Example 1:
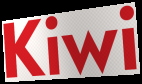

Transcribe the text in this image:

Kiwi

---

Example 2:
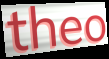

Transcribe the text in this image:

theo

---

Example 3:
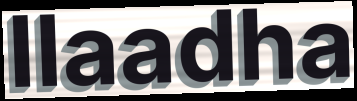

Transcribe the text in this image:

Ilaadha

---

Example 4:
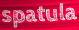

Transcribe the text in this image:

spatula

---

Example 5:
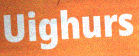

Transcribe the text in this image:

Uighurs